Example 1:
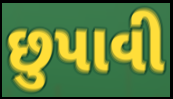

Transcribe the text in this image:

છુપાવી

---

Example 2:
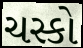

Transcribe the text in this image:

ચસ્કો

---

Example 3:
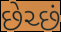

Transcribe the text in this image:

છેચ્છં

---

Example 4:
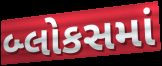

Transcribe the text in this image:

બ્લોકસમાં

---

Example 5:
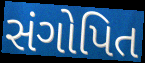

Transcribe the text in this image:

સંગોપિત